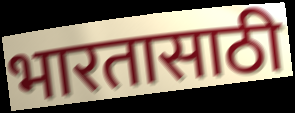
भारतासाठी